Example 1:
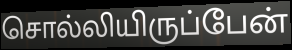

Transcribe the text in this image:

சொல்லியிருப்பேன்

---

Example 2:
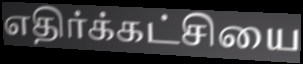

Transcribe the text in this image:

எதிர்க்கட்சியை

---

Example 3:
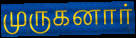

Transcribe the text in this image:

முருகனார்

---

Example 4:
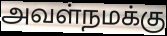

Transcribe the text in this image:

அவள்நமக்கு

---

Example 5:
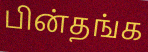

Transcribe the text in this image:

பின்தங்க